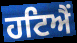
ਹਟਿਐਂ